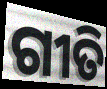
ଗୀତି